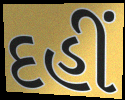
દહીં